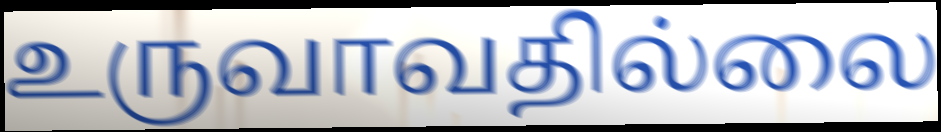
உருவாவதில்லை